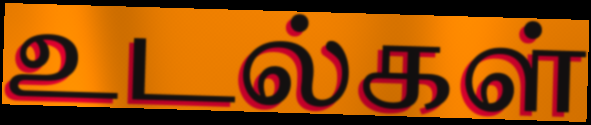
உடல்கள்